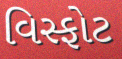
વિસ્ફોટ